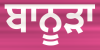
ਬਾਨੂੜਾ